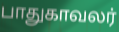
பாதுகாவலர்